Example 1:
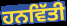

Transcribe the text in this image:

ਹਨਵਿੱਤੀ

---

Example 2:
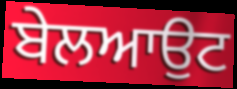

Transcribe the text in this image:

ਬੇਲਆਉਟ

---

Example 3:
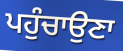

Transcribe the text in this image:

ਪਹੁੰਚਾਉਣਾ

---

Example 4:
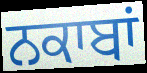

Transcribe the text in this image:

ਨਕਾਬਾਂ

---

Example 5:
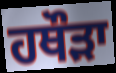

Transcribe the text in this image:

ਹਥੌੜਾ